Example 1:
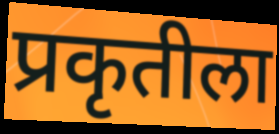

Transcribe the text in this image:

प्रकृतीला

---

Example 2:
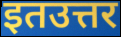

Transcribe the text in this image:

इतउत्तर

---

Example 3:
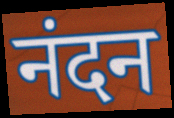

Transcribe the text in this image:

नंदन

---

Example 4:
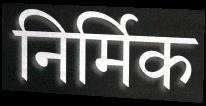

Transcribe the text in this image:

निर्मिक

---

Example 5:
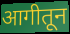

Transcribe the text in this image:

आगीतून